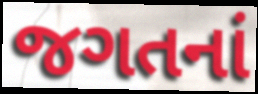
જગતનાં